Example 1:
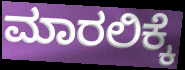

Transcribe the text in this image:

ಮಾರಲಿಕ್ಕೆ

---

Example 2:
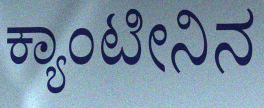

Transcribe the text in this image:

ಕ್ಯಾಂಟೀನಿನ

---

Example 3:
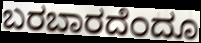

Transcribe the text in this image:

ಬರಬಾರದೆಂದೂ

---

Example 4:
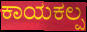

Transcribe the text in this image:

ಕಾಯಕಲ್ಪ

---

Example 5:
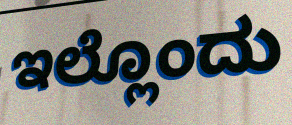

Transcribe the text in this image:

ಇಲ್ಲೊಂದು